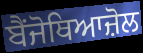
ਬੈਂਜੋਥਿਆਜ਼ੋਲ